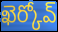
ఖెర్కోవ్